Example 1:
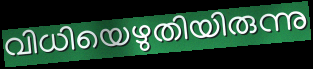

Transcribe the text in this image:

വിധിയെഴുതിയിരുന്നു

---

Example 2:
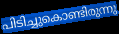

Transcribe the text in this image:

പിടിച്ചുകൊണ്ടിരുന്നു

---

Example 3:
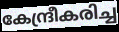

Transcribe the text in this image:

കേന്ദ്രീകരിച്ച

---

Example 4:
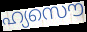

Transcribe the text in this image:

ഹ്യസൌ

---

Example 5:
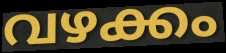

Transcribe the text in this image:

വഴക്കം